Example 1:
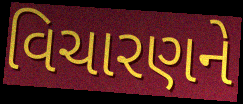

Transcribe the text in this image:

વિચારણને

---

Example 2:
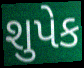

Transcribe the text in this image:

શુપેક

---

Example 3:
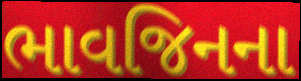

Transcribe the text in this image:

ભાવજિનના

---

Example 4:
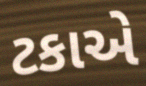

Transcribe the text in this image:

ટકાએ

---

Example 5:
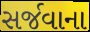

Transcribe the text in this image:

સર્જવાના